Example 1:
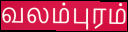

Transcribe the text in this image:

வலம்புரம்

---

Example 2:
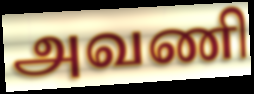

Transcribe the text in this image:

அவணி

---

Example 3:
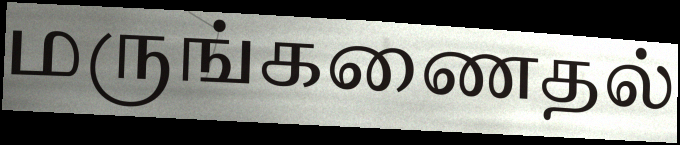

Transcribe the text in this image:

மருங்கணைதல்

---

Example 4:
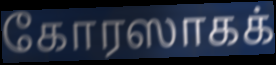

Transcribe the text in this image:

கோரஸாகக்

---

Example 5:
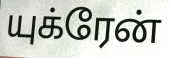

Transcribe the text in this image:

யுக்ரேன்